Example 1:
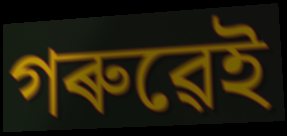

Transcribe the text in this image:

গৰুৱেই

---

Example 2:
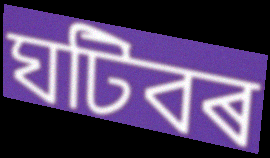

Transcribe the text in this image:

ঘটিবৰ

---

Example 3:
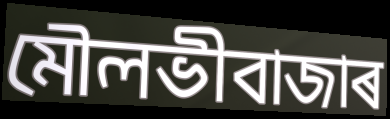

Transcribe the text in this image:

মৌলভীবাজাৰ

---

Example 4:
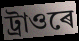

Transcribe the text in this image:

ট্ৰাওৰে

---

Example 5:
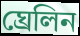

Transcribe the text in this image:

ঘ্ৰেলিন